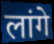
लांगे